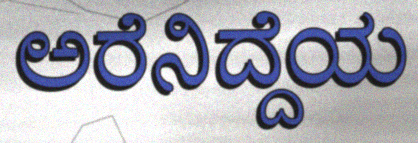
ಅರೆನಿದ್ದೆಯ